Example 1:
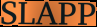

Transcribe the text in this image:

SLAPP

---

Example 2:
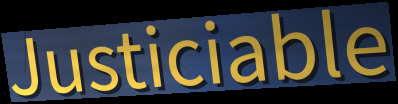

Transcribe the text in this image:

Justiciable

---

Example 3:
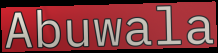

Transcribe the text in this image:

Abuwala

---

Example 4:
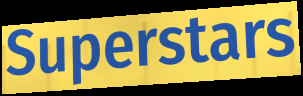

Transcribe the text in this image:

Superstars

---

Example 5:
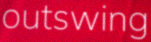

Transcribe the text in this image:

outswing